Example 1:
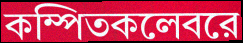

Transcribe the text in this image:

কম্পিতকলেবরে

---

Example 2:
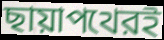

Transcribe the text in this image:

ছায়াপথেরই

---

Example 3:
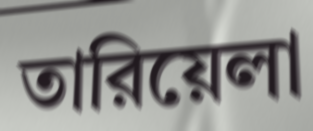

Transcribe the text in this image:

তারিয়েলা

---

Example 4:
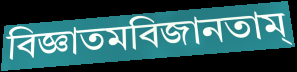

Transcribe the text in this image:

বিজ্ঞাতমবিজানতাম্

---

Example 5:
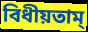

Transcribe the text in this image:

বিধীয়তাম্